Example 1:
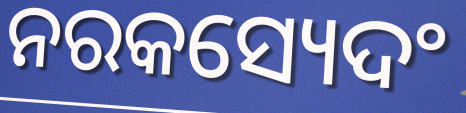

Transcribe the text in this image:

ନରକସ୍ୟେଦଂ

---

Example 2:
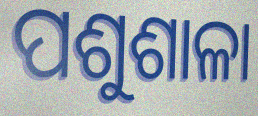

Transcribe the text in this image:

ପଶୁଶାଳା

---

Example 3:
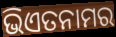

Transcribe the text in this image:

ଭିଏତନାମର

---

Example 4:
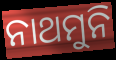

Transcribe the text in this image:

ନାଥମୁନି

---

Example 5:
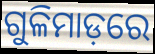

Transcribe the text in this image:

ଗୁଳିମାଡ଼ରେ